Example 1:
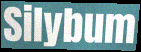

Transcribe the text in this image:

Silybum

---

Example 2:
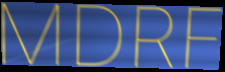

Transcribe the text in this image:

MDRF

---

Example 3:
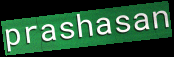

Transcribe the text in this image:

prashasan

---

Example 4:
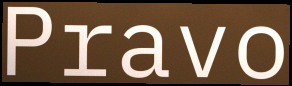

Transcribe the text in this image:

Pravo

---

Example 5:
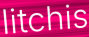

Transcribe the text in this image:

litchis